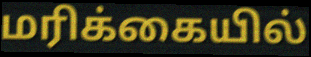
மரிக்கையில்